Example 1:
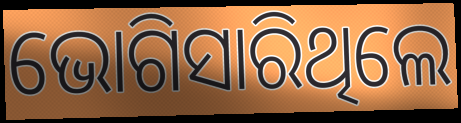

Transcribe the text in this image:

ଭୋଗିସାରିଥିଲେ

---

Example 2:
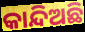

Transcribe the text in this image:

କାନ୍ଦିଅଛି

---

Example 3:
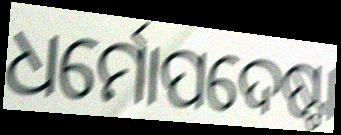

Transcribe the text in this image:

ଧର୍ମୋପଦେଷ୍ଟା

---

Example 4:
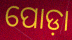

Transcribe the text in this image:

ପୋଡ଼ା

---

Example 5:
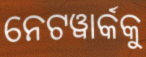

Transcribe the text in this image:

ନେଟୱାର୍କକୁ